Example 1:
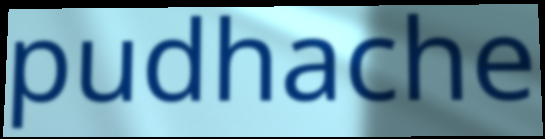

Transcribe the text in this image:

pudhache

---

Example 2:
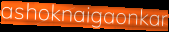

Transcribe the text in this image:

ashoknaigaonkar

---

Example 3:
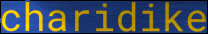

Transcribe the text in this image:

charidike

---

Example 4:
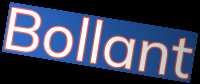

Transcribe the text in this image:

Bollant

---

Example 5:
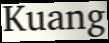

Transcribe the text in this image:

Kuang